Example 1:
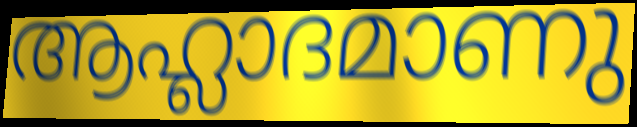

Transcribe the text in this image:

ആഹ്ലാദമാണു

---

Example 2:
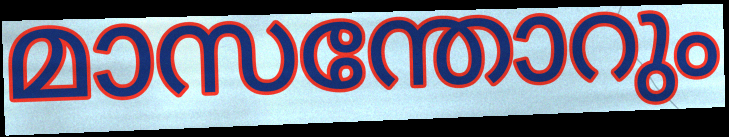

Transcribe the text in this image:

മാസന്തോറും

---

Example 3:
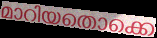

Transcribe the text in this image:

മാറിയതൊക്കെ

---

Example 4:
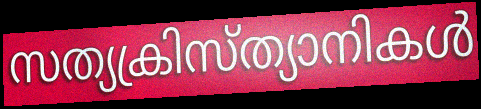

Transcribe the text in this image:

സത്യക്രിസ്ത്യാനികൾ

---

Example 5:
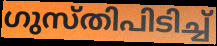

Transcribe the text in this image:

ഗുസ്തിപിടിച്ച്